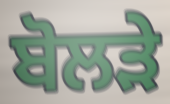
ਬੋਲੜੇ